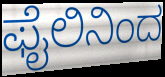
ಫೈಲಿನಿಂದ